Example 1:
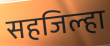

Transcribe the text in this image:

सहजिल्हा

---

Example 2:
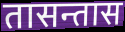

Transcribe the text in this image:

तासन्तास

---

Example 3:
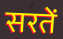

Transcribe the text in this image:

सरतें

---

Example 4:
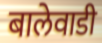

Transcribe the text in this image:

बालेवाडी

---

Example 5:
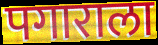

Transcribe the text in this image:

पगाराला